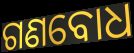
ଗଣବୋଧ